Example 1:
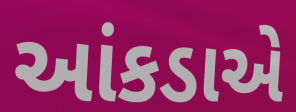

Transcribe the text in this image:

આંકડાએ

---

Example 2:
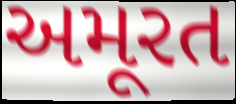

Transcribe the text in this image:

અમૂરત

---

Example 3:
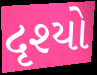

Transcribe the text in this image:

દૃશ્યો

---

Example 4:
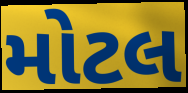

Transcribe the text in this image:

મોટલ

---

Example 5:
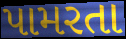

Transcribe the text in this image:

પામરતા